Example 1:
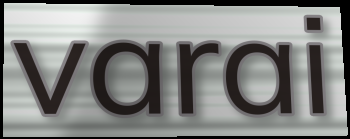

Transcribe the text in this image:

varai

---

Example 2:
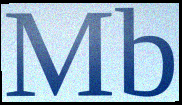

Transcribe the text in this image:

Mb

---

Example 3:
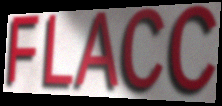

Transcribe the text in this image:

FLACC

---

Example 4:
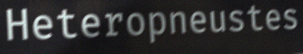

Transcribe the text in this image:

Heteropneustes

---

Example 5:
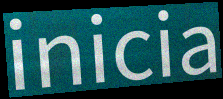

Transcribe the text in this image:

inicia